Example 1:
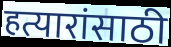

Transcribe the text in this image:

हत्यारांसाठी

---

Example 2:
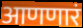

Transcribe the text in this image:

आणणारं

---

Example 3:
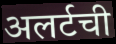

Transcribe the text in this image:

अलर्टची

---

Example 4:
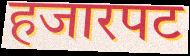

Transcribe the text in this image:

हजारपट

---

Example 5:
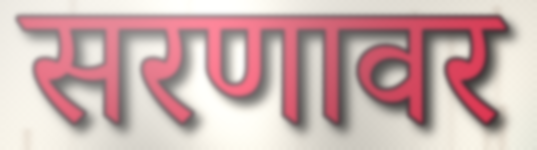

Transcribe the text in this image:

सरणावर